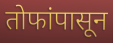
तोफांपासून